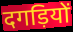
दगड़ियों